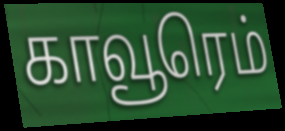
காவூரெம்